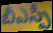
బీఎస్పీ